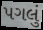
પગલું